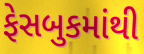
ફેસબુકમાંથી